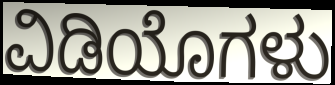
ವಿಡಿಯೊಗಳು